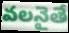
వలనైతే